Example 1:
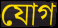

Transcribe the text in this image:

যোগ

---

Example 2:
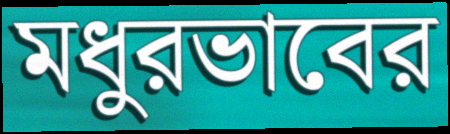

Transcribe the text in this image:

মধুরভাবের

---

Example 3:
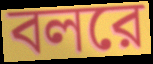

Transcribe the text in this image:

বলরে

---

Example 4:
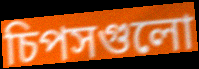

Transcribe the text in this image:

চিপসগুলো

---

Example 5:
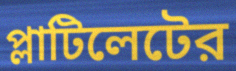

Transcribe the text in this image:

প্লাটিলেটের